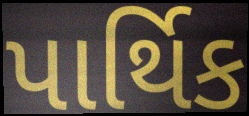
પાર્થિક